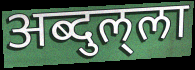
अब्दुल्ला